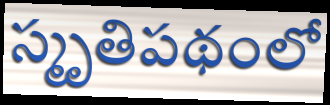
స్మృతిపథంలో